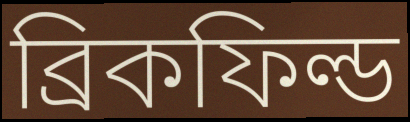
ব্রিকফিল্ড